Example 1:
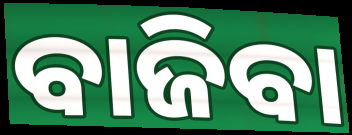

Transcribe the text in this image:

ବାଜିବା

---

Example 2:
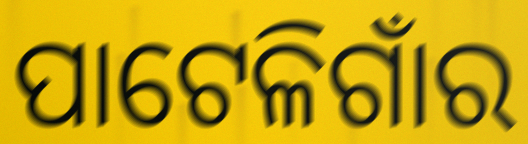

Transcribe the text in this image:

ପାଟେଳିଗାଁର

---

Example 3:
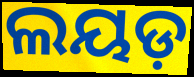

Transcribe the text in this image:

ଲୟଡ଼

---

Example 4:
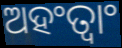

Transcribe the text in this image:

ଅହଂତ୍ୱାଂ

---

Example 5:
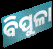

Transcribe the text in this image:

ବିପୁଳା